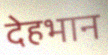
देहभान